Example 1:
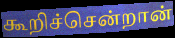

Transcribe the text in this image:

கூறிச்சென்றான்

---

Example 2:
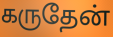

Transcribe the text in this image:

கருதேன்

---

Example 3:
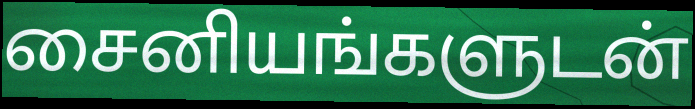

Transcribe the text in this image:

சைனியங்களுடன்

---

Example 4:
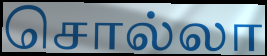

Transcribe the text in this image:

சொல்லா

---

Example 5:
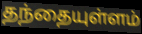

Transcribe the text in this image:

தந்தையுள்ளம்